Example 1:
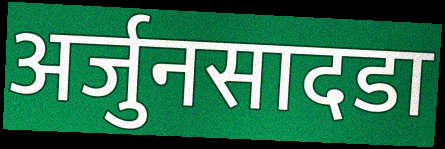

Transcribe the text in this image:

अर्जुनसादडा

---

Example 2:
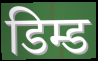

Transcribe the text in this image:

डिम्ड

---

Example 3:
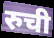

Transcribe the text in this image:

रुची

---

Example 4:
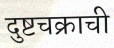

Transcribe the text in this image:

दुष्टचक्राची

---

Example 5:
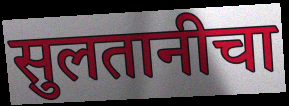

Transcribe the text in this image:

सुलतानीचा